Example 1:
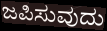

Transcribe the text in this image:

ಜಪಿಸುವುದು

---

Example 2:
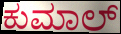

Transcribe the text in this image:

ಕುಮಾಲ್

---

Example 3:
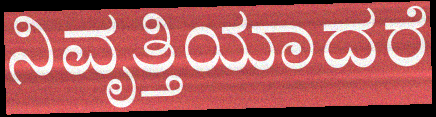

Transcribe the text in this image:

ನಿವೃತ್ತಿಯಾದರೆ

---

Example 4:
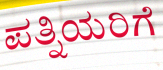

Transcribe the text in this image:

ಪತ್ನಿಯರಿಗೆ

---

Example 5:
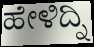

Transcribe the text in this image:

ಹೇಳಿದ್ನಿ